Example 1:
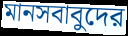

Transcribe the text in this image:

মানসবাবুদের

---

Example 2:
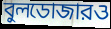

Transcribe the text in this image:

বুলডোজারও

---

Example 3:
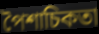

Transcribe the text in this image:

পৈশাচিকতা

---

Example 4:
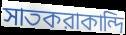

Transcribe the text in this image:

সাতকরাকান্দি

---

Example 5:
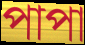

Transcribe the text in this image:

পাপা